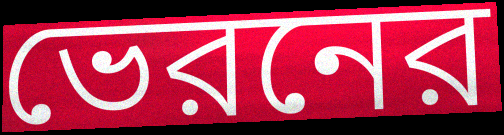
ভেরনের